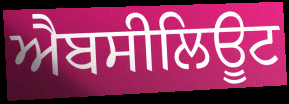
ਐਬਸੀਲਿਊਟ